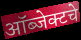
ऑब्जेक्टचे